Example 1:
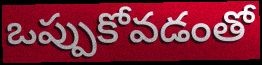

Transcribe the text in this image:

ఒప్పుకోవడంతో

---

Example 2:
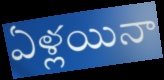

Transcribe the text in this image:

ఏళ్లయినా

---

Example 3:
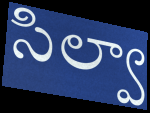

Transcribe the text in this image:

సిల్వా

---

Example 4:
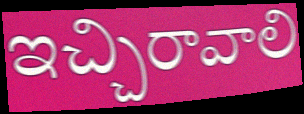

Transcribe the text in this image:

ఇచ్చిరావాలి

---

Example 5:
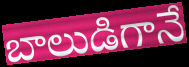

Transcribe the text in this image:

బాలుడిగానే